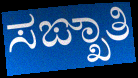
ಸಙ್ಖಾತಿ